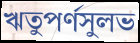
ঋতুপর্ণসুলভ